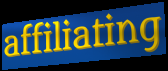
affiliating